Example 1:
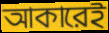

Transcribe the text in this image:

আকারেই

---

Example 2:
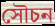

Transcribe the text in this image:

সৌচন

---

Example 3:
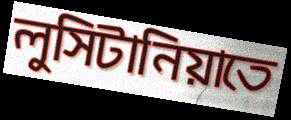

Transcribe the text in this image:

লুসিটানিয়াতে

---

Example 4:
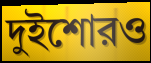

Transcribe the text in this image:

দুইশোরও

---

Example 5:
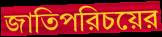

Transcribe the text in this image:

জাতিপরিচয়ের